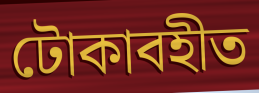
টোকাবহীত